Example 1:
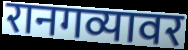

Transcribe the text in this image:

रानगव्यावर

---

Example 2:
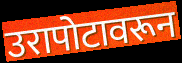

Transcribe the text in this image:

उरापोटावरून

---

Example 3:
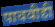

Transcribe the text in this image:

पाचवीही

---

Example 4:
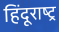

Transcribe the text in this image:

हिंदूराष्ट्र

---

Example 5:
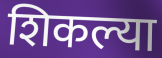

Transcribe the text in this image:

शिकल्या